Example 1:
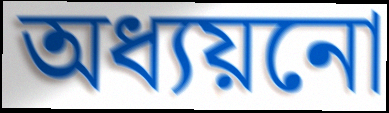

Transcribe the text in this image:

অধ্যয়নো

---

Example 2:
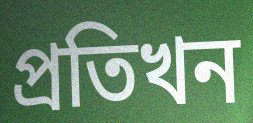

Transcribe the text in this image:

প্ৰতিখন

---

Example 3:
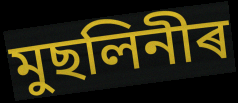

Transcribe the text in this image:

মুছলিনীৰ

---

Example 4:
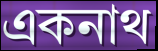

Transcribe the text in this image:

একনাথ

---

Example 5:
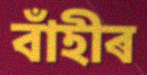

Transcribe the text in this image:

বাঁহীৰ